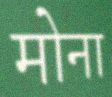
मोना